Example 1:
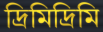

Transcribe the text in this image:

দ্রিমিদ্রিমি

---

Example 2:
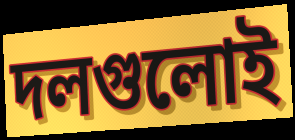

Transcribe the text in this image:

দলগুলোই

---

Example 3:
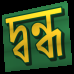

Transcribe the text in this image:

দ্বন্ধ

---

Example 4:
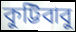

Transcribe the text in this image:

কুট্টিবাবু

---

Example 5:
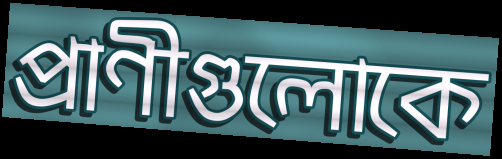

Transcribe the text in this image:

প্রাণীগুলোকে